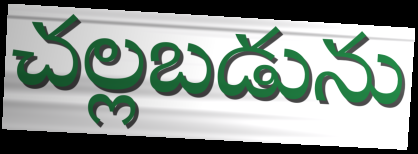
చల్లబడును